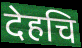
देहचि